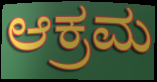
ಆಕ್ರಮ